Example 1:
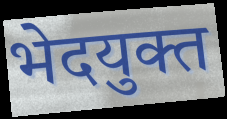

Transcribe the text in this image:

भेदयुक्त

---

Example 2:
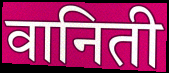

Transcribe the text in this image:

वानिती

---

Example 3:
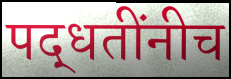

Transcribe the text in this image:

पद्धतींनीच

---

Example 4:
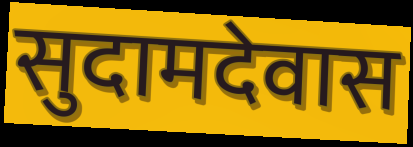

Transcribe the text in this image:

सुदामदेवास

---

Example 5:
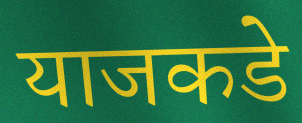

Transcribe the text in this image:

याजकडे